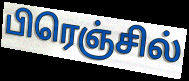
பிரெஞ்சில்